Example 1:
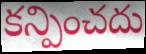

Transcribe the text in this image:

కన్పించదు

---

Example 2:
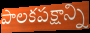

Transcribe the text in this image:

పాలకపక్షాన్ని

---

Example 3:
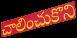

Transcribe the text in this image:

చాలించుకొని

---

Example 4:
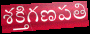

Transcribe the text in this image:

శక్తిగణపతి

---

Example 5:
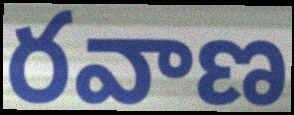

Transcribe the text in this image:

రవాణ